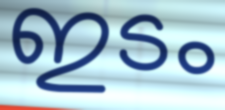
ഇടം